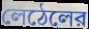
লেঠেলের